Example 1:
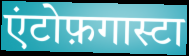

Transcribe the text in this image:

एंटोफ़गास्टा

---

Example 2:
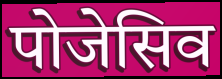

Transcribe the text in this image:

पोजेसिव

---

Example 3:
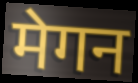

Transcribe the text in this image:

मेगन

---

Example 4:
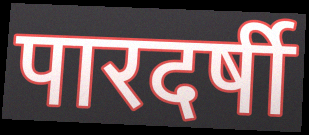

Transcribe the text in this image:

पारदर्षी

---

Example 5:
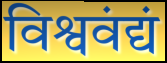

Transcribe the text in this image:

विश्ववंद्यं